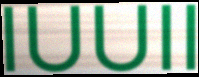
IUUII